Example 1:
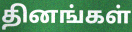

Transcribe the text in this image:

தினங்கள்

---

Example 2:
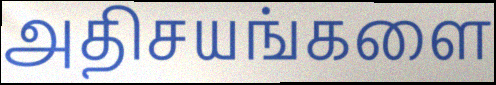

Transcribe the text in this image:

அதிசயங்களை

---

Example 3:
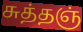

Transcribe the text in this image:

சுத்தஞ்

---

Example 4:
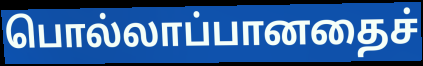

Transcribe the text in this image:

பொல்லாப்பானதைச்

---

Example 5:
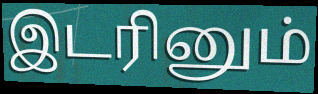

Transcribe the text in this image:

இடரினும்